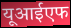
यूआईएफ